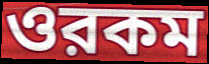
ওরকম